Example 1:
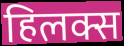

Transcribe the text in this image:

हिलक्स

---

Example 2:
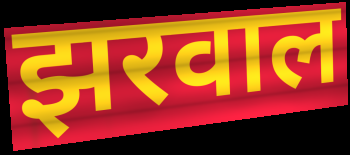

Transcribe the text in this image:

झरवाल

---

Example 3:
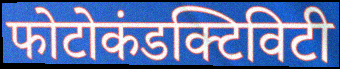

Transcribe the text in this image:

फोटोकंडक्टिविटी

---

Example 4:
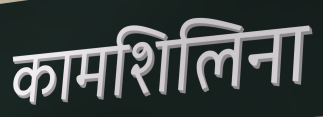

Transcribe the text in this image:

कामशिलिना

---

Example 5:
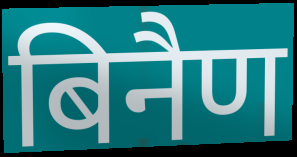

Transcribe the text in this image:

बिनैण